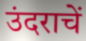
उंदराचें